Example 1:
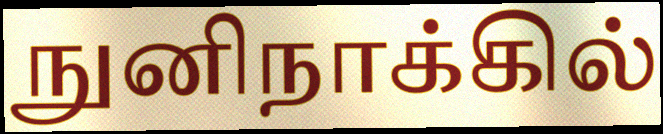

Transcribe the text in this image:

நுனிநாக்கில்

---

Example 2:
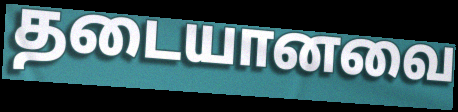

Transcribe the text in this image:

தடையானவை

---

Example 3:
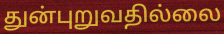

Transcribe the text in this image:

துன்புறுவதில்லை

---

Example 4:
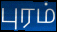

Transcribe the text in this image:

புரம்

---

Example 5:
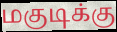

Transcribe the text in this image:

மகுடிக்கு